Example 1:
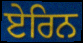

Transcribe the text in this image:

ਏਰਿਨ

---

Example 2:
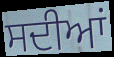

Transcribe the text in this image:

ਸਦੀਆਂ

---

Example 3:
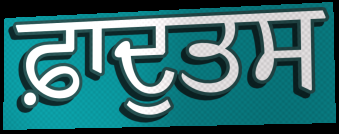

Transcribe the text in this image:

ਫ਼ਾਦੁਤਸ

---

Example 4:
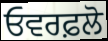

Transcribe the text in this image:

ਓਵਰਫ਼ਲੋ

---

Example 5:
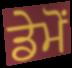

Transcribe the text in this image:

ਡੇਮੋਂ